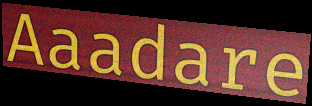
Aaadare